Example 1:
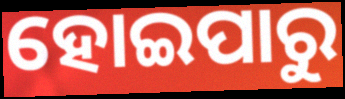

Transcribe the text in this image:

ହୋଇପାରୁ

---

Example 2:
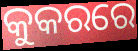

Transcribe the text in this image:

କୁକରରେ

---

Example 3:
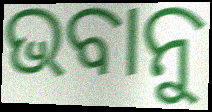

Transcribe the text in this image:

ଭବାନୁ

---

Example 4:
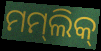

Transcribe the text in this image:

ମମ୍‌ଲିକ୍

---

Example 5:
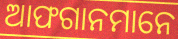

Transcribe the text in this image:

ଆଫଗାନମାନେ